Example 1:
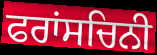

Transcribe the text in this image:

ਫਰਾਂਸਚਿਨੀ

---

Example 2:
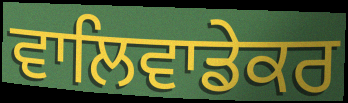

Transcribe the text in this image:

ਵਾਲਿਵਾਡੇਕਰ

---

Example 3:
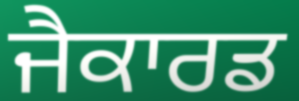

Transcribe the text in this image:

ਜੈਕਾਰਡ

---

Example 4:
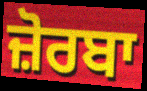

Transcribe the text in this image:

ਜ਼ੋਰਬਾ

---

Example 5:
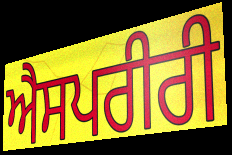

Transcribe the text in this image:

ਐਸਪਰੀਰੀ